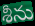
శీను